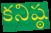
కనిష్ఠ